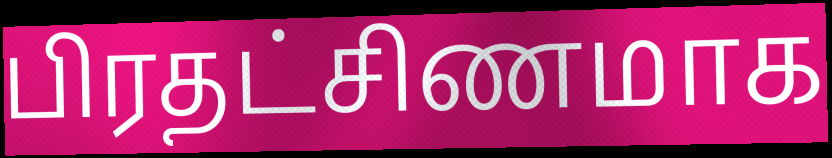
பிரதட்சிணமாக